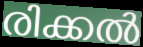
രിക്കൽ